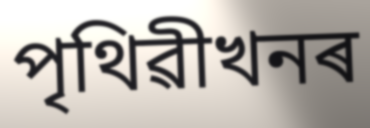
পৃথিৱীখনৰ